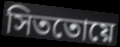
সিততোয়ে